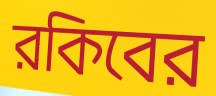
রকিবের